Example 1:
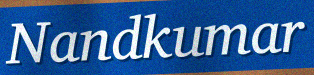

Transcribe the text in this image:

Nandkumar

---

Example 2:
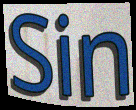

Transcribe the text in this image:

Sin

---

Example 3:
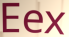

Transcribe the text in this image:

Eex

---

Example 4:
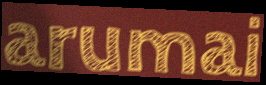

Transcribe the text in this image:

arumai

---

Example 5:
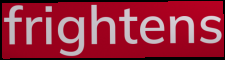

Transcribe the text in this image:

frightens